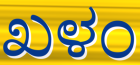
ಖಳಂ